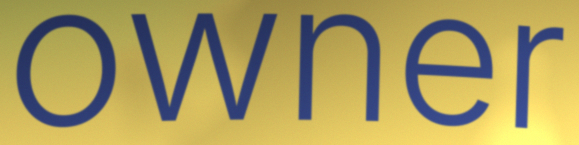
owner